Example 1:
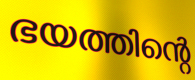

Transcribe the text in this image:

ഭയത്തിന്റെ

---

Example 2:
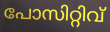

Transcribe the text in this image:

പോസിറ്റിവ്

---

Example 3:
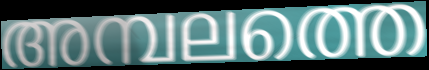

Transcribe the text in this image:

അമ്പലത്തെ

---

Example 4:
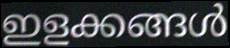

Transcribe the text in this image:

ഇളക്കങ്ങൾ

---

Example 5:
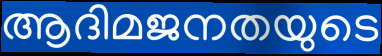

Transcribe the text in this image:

ആദിമജനതയുടെ